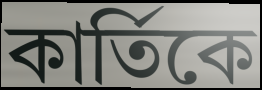
কাৰ্তিকে